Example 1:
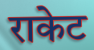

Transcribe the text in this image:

राकेट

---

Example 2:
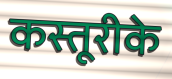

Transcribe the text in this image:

कस्तूरीके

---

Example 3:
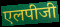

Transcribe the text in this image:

एलपीजी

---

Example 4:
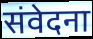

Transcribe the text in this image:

संवेदना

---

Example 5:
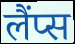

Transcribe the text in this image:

लैंप्स